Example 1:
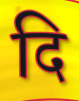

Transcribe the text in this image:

दि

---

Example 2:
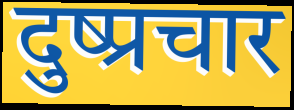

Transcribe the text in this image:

दुष्‍प्रचार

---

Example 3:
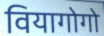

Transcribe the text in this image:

वियागोगो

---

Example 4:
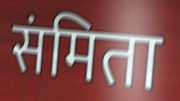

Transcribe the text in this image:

संमिता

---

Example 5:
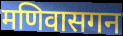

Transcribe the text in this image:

मणिवासगन